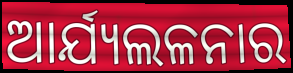
ଆର୍ଯ୍ୟଲଳନାର